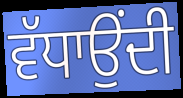
ਵੱਧਾਉਂਦੀ